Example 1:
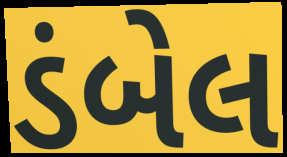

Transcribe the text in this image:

ડંબેલ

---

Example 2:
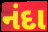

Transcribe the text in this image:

નંદા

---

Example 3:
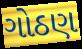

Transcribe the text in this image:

ગોઠણ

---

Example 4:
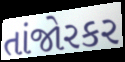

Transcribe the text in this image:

તાંજોરકર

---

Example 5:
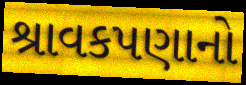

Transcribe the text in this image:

શ્રાવકપણાનો